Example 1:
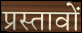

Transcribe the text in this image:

प्रस्तावों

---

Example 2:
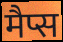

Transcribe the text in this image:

मैप्स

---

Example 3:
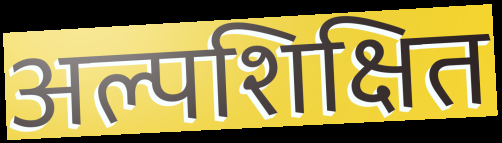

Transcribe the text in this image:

अल्पशिक्षित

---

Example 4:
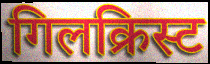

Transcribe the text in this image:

गिलक्रिस्ट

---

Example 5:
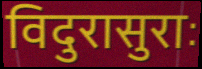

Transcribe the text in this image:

विदुरासुराः